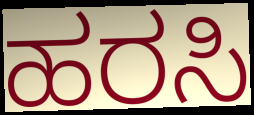
ಹರಸಿ